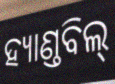
ହ୍ୟାଣ୍ଡବିଲ୍